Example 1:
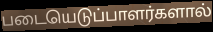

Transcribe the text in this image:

படையெடுப்பாளர்களால்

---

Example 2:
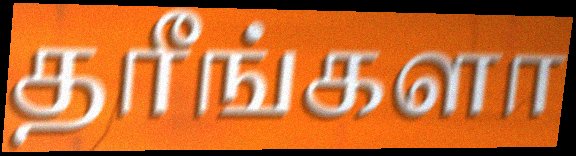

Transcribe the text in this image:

தரீங்களா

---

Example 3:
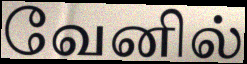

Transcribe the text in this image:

வேனில்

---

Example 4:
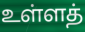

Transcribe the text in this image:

உள்ளத்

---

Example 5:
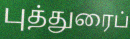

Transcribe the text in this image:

புத்துரைப்